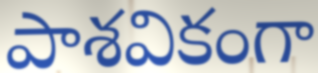
పాశవికంగా